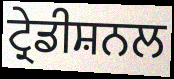
ਟ੍ਰੇਡੀਸ਼ਨਲ